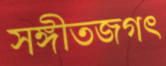
সঙ্গীতজগৎ